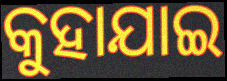
କୁହାଯାଇ